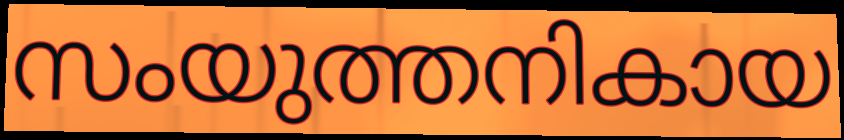
സംയുത്തനികായ